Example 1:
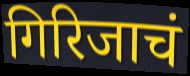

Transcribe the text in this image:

गिरिजाचं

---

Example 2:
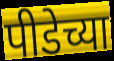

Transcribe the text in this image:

पीडेच्या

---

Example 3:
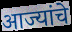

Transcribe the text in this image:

आज्यांचे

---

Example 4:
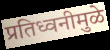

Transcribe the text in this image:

प्रतिध्वनीमुळे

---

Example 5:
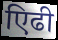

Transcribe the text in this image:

एिढी